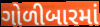
ગોળીબારમાં